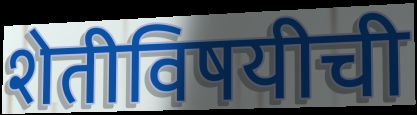
शेतीविषयीची